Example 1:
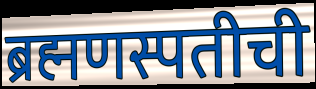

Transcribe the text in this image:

ब्रह्मणस्पतीची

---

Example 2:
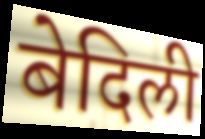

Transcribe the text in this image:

बेदिली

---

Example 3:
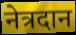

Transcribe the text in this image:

नेत्रदान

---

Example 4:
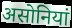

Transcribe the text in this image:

असोनियां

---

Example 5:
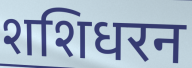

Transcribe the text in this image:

शशिधरन